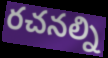
రచనల్ని